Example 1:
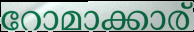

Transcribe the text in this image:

റോമാക്കാര്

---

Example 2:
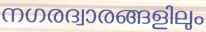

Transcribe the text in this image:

നഗരദ്വാരങ്ങളിലും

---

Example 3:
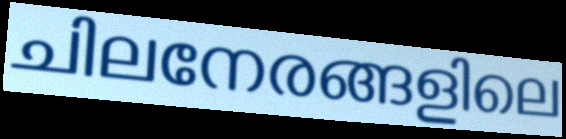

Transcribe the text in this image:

ചിലനേരങ്ങളിലെ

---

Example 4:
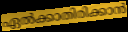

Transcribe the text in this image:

ഏൽക്കാതിരിക്കാൻ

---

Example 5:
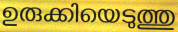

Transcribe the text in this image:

ഉരുക്കിയെടുത്തു